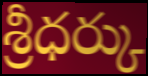
శ్రీధర్కు